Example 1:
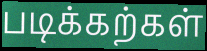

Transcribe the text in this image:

படிக்கற்கள்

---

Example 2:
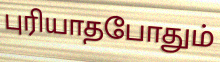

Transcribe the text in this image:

புரியாதபோதும்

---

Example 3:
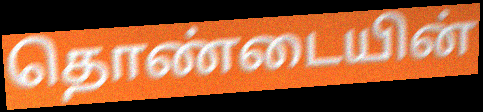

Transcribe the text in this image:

தொண்டையின்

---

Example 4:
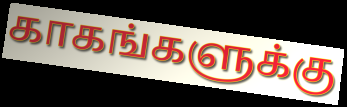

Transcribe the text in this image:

காகங்களுக்கு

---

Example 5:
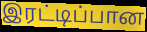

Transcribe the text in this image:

இரட்டிப்பான